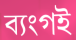
ব্যংগই